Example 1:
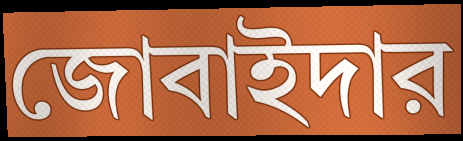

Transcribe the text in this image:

জোবাইদার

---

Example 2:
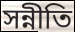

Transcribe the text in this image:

সন্নীতি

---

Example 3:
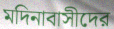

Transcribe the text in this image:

মদিনাবাসীদের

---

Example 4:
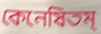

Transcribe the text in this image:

কেনেষিতম্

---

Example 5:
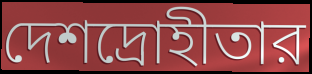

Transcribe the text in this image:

দেশদ্রোহীতার